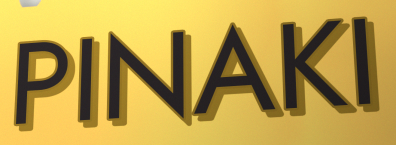
PINAKI